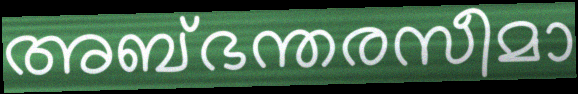
അബ്ഭന്തരസീമാ